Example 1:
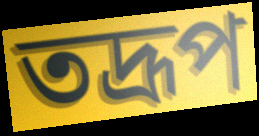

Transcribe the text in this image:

তদ্রূপ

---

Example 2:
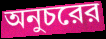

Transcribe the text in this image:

অনুচরের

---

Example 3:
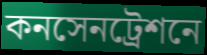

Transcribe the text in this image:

কনসেনট্রেশনে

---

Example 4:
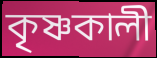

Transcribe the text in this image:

কৃষ্ণকালী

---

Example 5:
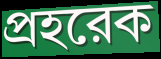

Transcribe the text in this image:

প্রহরেক